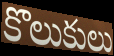
కొలుకులు